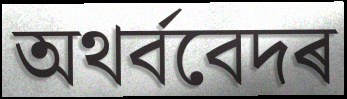
অথৰ্ববেদৰ